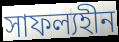
সাফল্যহীন